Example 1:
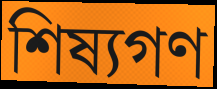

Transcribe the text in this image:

শিষ্যগণ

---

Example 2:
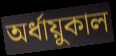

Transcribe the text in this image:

অর্ধায়ুকাল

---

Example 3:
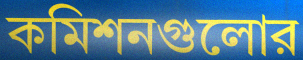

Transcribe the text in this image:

কমিশনগুলোর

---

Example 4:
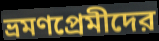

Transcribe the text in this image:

ভ্রমণপ্রেমীদের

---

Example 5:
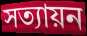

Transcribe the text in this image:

সত্যায়ন